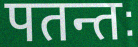
पतन्तः